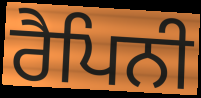
ਰੈਪਿਨੀ